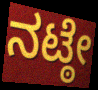
ನಟ್ಠೇ